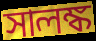
সালঙ্ক